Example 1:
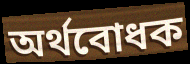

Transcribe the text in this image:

অর্থবোধক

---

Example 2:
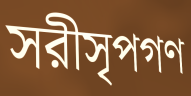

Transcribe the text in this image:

সরীসৃপগণ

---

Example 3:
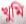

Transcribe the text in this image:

খুমি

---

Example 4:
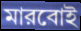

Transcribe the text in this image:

মারবোই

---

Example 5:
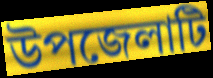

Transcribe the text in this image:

উপজেলাটি